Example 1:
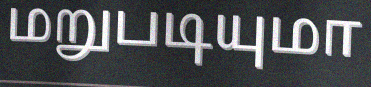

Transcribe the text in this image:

மறுபடியுமா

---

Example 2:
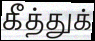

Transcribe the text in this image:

கீத்துக்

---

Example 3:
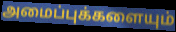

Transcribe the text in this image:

அமைப்புக்களையும்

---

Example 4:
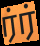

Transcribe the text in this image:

ர்ர்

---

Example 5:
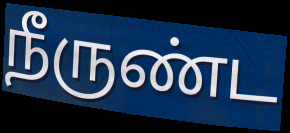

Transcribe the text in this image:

நீருண்ட